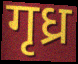
गृध्र